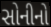
સોનીનો